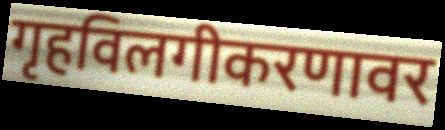
गृहविलगीकरणावर